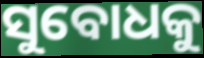
ସୁବୋଧକୁ